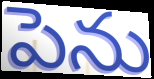
పెను